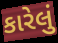
કારેલું